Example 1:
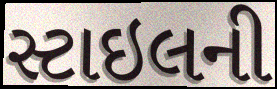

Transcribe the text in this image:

સ્ટાઇલની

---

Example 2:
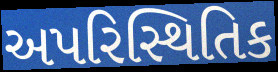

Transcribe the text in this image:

અપરિસ્થિતિક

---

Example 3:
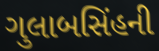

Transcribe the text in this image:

ગુલાબસિંહની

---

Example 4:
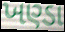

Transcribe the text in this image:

ખણ્ડા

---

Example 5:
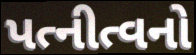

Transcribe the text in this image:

પત્નીત્વનો